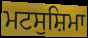
ਮਟਸੁਸ਼ਿਮਾ